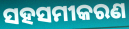
ସହସମୀକରଣ